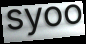
syoo